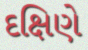
દક્ષિણે